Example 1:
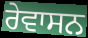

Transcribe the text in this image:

ਰੇਵਾਸਨ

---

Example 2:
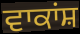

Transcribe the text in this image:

ਵਾਕਾਂਸ਼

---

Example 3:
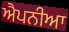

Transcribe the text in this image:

ਐਪਨੀਆ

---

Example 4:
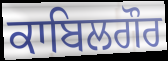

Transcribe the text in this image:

ਕਾਬਿਲਗੌਰ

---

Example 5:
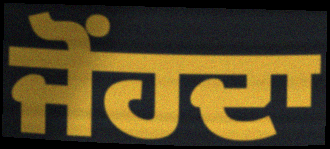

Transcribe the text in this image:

ਜੋਂਹਦਾ